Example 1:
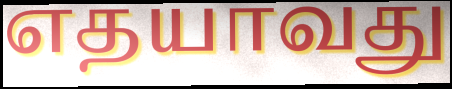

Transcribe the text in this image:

எதயாவது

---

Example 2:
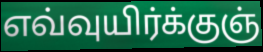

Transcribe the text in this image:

எவ்வுயிர்க்குஞ்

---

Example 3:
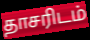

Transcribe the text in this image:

தாசரிடம்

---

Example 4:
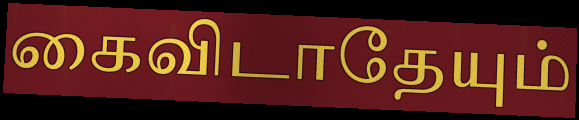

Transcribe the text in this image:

கைவிடாதேயும்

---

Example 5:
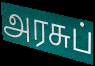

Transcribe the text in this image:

அரசுப்